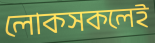
লোকসকলেই